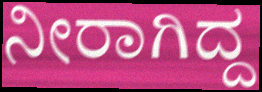
ನೀರಾಗಿದ್ದ